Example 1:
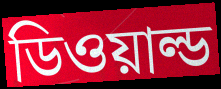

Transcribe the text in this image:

ডিওয়াল্ড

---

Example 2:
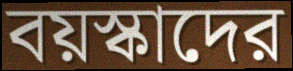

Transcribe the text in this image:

বয়স্কাদের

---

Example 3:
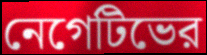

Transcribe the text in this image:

নেগেটিভের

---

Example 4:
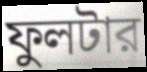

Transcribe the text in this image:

ফুলটার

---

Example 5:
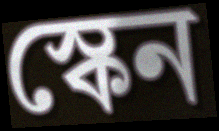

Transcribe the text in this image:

স্কেন